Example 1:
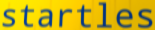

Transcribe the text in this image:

startles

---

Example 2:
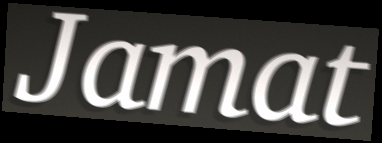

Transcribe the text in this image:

Jamat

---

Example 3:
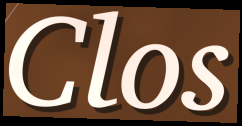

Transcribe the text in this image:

Clos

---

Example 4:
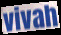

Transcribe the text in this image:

vivah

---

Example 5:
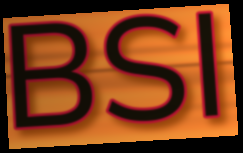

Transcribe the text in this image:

BSI